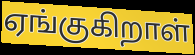
ஏங்குகிறாள்